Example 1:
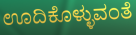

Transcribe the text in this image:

ಊದಿಕೊಳ್ಳುವಂತೆ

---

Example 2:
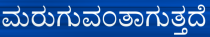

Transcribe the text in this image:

ಮರುಗುವಂತಾಗುತ್ತದೆ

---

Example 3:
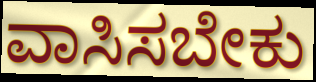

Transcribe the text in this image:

ವಾಸಿಸಬೇಕು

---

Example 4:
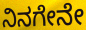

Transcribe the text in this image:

ನಿನಗೇನೇ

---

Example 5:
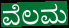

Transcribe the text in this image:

ವೆಲಮ